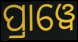
ପ୍ରାୱେ